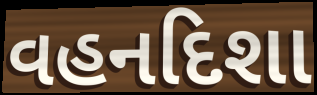
વહનદિશા